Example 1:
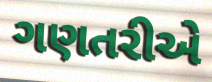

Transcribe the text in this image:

ગણતરીએ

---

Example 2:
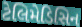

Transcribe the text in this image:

ટેલિમેડિસિન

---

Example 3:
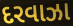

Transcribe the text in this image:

દરવાઝા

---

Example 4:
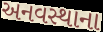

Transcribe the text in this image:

અનવસ્થાના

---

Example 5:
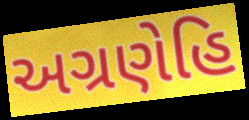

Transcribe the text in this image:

અગ્રણેહિ